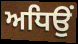
ਅਧਿਉਂ